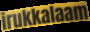
irukkalaam